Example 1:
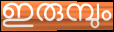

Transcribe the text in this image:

ഇരുമ്പും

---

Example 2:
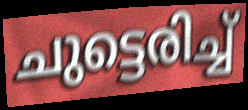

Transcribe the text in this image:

ചുട്ടെരിച്ച്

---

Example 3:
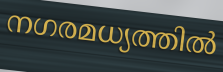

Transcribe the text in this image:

നഗരമധ്യത്തിൽ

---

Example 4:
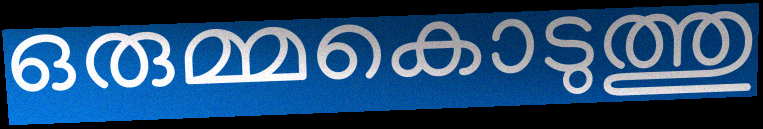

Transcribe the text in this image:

ഒരുമ്മകൊടുത്തു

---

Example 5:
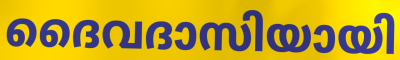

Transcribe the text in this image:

ദൈവദാസിയായി